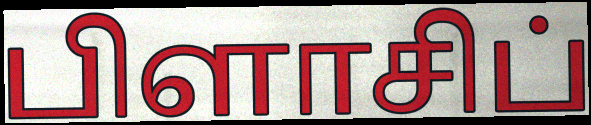
பிளாசிப்